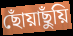
ছোঁয়াছুঁয়ি